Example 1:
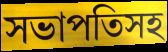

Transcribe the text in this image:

সভাপতিসহ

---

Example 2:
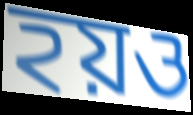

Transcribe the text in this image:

হয়ও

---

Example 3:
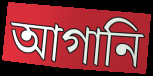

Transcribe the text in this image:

আগানি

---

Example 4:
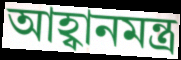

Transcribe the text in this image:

আহ্বানমন্ত্র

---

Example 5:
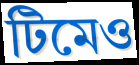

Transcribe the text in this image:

টিমেও